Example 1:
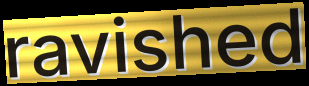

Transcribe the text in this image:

ravished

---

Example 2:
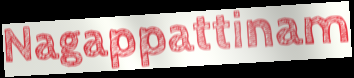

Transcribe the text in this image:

Nagappattinam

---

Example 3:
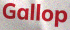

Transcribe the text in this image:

Gallop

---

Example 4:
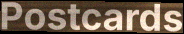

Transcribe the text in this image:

Postcards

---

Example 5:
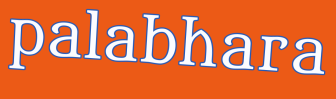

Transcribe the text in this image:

palabhara